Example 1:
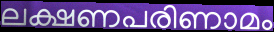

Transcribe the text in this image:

ലക്ഷണപരിണാമം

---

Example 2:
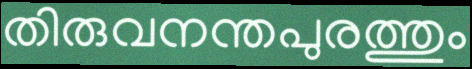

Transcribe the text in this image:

തിരുവനന്തപുരത്തും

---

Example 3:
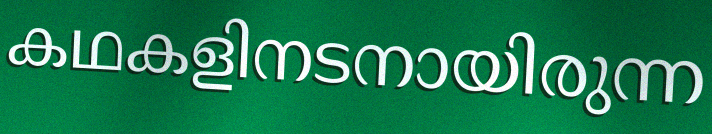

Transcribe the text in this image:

കഥകളിനടനായിരുന്ന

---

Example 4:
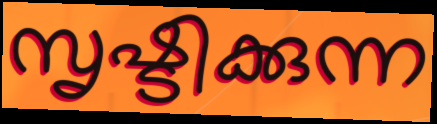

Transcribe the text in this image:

സൃഷ്ടിക്കുന്ന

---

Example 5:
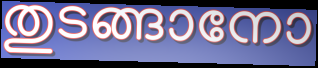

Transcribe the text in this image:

തുടങ്ങാനോ